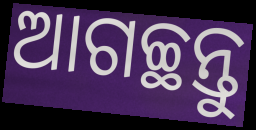
ଆଗଚ୍ଛନ୍ତୁ